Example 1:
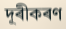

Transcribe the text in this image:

দূৰীকৰণ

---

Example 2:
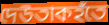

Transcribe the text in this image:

দেউতাকহঁতে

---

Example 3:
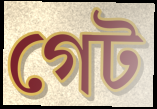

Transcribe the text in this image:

গেট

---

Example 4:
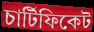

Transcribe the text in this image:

চাৰ্টিফিকেট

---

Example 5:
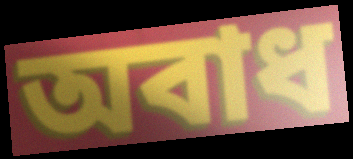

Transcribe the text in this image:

অবাধ